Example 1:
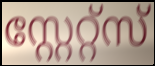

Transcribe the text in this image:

സ്റ്റേറ്റ്സ്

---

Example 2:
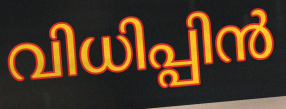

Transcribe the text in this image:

വിധിപ്പിൻ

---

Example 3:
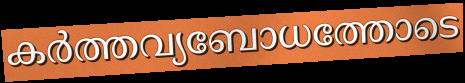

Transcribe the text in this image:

കർത്തവ്യബോധത്തോടെ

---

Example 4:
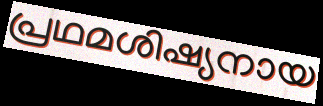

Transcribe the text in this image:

പ്രഥമശിഷ്യനായ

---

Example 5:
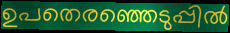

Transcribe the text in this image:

ഉപതെരഞ്ഞെടുപ്പിൽ